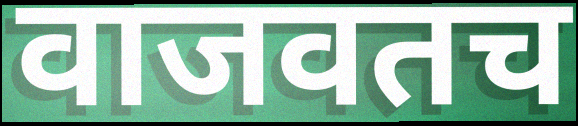
वाजवतच